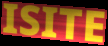
ISITE